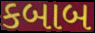
કબાબ